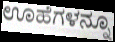
ಊಹೆಗಳನ್ನೂ